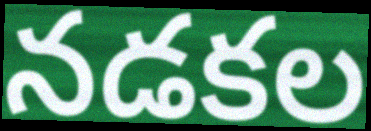
నడకల